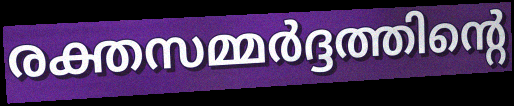
രക്തസമ്മർദ്ദത്തിന്റെ